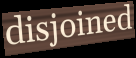
disjoined